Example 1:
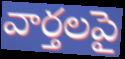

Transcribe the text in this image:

వార్తలపై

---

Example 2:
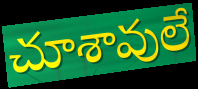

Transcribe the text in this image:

చూశావులే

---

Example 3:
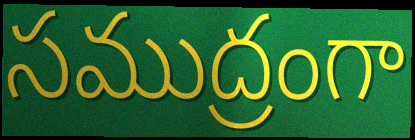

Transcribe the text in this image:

సముద్రంగా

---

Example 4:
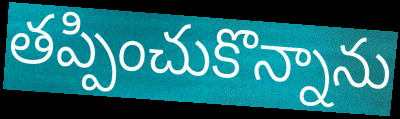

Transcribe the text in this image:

తప్పించుకొన్నాను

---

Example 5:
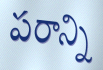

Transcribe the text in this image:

పరాన్ని